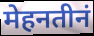
मेहनतीनं